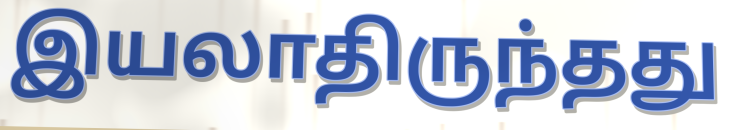
இயலாதிருந்தது